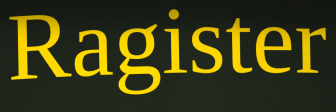
Ragister